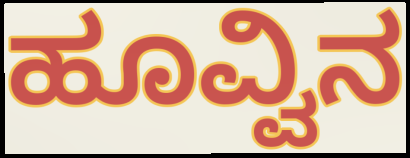
ಹೂವ್ವಿನ